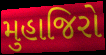
મુહાજિરો